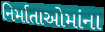
નિર્માતાઓમાંના